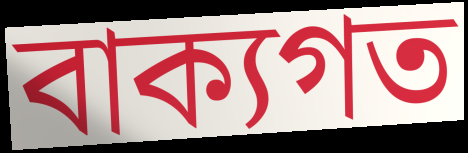
বাক্যগত